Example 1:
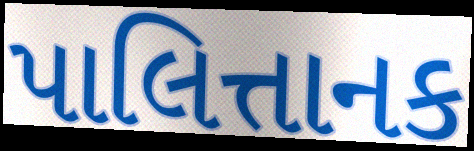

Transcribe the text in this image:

પાલિત્તાનક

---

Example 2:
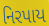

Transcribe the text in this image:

નિરપાય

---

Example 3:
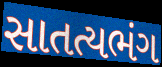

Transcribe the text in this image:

સાતત્યભંગ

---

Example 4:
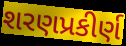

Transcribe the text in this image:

શરણપ્રકીર્ણ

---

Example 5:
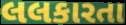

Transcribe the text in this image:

લલકારતા